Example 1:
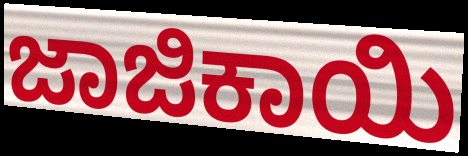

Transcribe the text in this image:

ಜಾಜಿಕಾಯಿ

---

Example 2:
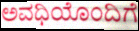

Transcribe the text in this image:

ಅವಧಿಯೊಂದಿಗೆ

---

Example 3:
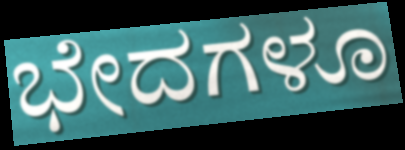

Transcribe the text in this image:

ಭೇದಗಳೂ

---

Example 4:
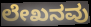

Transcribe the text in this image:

ಲೇಖನವು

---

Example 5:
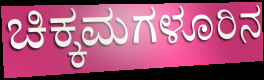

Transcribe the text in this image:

ಚಿಕ್ಕಮಗಳೂರಿನ